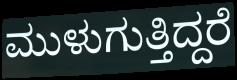
ಮುಳುಗುತ್ತಿದ್ದರೆ